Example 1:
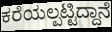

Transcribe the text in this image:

ಕರೆಯಲ್ಪಟ್ಟಿದ್ದಾನೆ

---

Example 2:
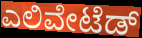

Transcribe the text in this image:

ಎಲಿವೇಟೆಡ್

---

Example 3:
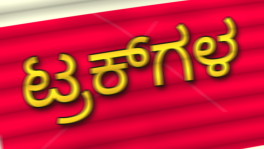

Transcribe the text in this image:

ಟ್ರಕ್‌ಗಳ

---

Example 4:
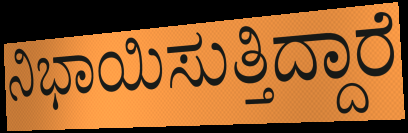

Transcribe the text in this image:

ನಿಭಾಯಿಸುತ್ತಿದ್ದಾರೆ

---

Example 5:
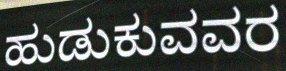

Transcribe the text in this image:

ಹುಡುಕುವವರ